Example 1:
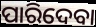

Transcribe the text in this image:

ପାରିଦେବା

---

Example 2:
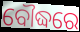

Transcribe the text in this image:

ବୌଦ୍ଧରେ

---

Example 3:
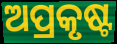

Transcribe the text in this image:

ଅପ୍ରକୃଷ୍ଟ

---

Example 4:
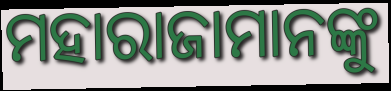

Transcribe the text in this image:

ମହାରାଜାମାନଙ୍କୁ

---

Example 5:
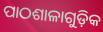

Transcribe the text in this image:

ପାଠଶାଳାଗୁଡ଼ିକ